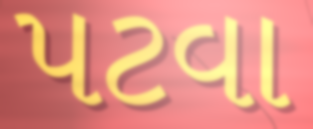
પટવા